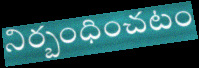
నిర్బంధించటం